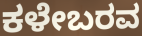
ಕಳೇಬರವ